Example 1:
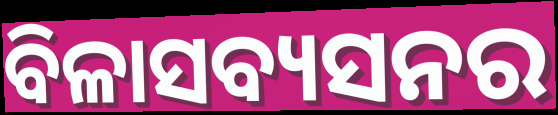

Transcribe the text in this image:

ବିଳାସବ୍ୟସନର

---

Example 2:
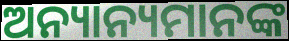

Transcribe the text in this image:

ଅନ୍ୟାନ୍ୟମାନଙ୍କ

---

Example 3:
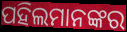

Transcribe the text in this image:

ପହିଲମାନଙ୍କର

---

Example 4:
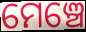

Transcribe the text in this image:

ମେଞ୍ଚେ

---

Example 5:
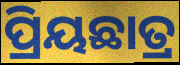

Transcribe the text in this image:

ପ୍ରିୟଛାତ୍ର